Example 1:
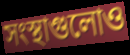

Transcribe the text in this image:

সংস্থাগুলোও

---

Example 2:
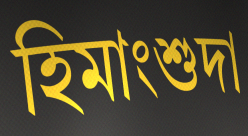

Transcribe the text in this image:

হিমাংশুদা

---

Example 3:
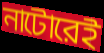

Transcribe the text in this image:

নাটোরেই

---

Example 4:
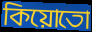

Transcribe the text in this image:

কিয়োতো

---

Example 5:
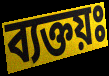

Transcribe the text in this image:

ব্যক্তয়ঃ